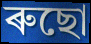
ৰুছো